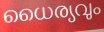
ധൈര്യവും